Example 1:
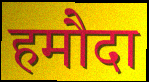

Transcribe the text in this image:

हमौदा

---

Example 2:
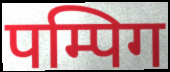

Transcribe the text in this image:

पम्पिग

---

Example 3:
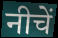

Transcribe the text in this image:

नीचें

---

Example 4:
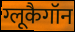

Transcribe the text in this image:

ग्लूकैगॉन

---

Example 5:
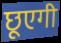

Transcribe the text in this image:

छूएगी